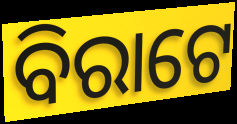
ବିରାଟେ